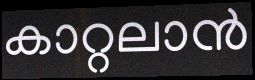
കാറ്റലാൻ